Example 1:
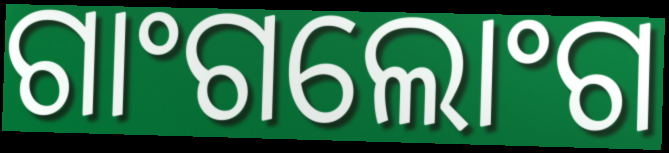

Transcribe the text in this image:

ଗାଂଗଲୋଂଗ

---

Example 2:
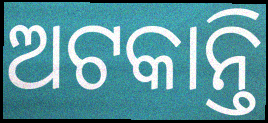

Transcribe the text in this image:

ଅଟକାନ୍ତି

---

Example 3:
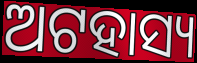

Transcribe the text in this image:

ଅଟହାସ୍ୟ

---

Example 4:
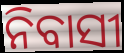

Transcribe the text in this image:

ନିବାସୀ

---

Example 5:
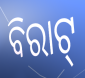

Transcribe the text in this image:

ବିରାଟ୍